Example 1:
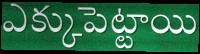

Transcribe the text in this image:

ఎక్కుపెట్టాయి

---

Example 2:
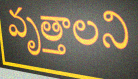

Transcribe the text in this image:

వృత్తాలని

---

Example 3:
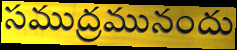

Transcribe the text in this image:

సముద్రమునందు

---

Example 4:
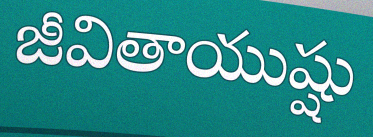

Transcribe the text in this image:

జీవితాయుష్షు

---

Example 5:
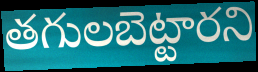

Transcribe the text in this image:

తగులబెట్టారని